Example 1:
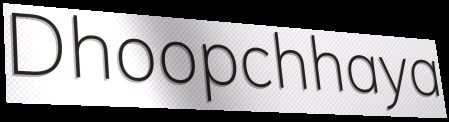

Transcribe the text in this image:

Dhoopchhaya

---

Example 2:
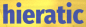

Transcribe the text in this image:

hieratic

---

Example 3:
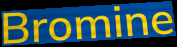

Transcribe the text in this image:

Bromine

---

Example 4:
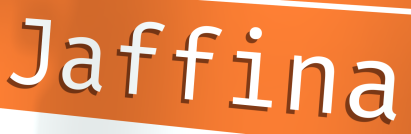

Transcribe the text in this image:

Jaffina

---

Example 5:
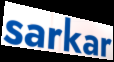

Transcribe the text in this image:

sarkar